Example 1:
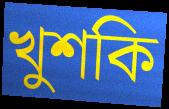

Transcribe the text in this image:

খুশকি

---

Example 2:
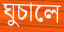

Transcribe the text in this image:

ঘুচালে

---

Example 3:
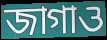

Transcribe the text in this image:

জাগাও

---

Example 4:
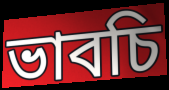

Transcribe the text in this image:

ভাবচি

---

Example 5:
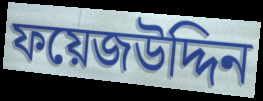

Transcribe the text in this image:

ফয়েজউদ্দিন